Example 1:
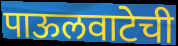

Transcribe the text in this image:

पाऊलवाटेची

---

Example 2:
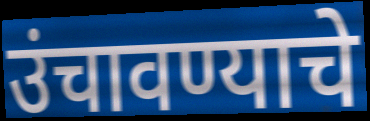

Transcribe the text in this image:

उंचावण्याचे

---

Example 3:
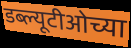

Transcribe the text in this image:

डब्ल्यूटीओच्या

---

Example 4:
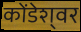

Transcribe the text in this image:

कोंडेश्वर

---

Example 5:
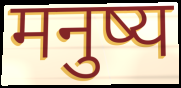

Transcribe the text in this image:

मनुष्य